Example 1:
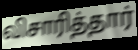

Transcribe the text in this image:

விசாரித்தார்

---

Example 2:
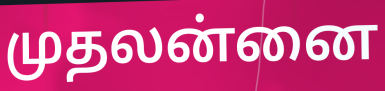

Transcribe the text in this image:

முதலன்னை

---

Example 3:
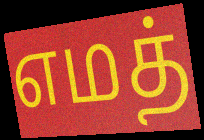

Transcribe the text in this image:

எமத்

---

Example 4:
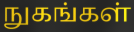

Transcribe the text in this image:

நுகங்கள்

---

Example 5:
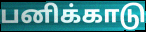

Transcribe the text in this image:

பனிக்காடு